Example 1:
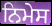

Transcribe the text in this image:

ਨਿਮੇਸ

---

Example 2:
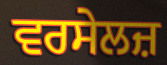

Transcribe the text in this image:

ਵਰਸੇਲਜ਼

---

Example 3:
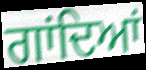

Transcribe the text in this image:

ਗਾਂਦਿਆਂ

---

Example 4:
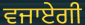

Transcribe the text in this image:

ਵਜਾਏਗੀ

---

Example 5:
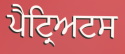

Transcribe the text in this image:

ਪੈਟ੍ਰਿਅਟਸ